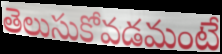
తెలుసుకోవడమంటే